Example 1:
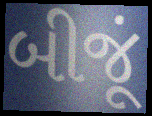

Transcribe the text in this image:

બીજૂં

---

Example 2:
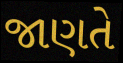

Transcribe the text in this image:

જાણતે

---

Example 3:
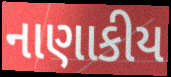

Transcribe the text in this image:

નાણાકીય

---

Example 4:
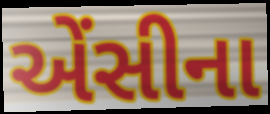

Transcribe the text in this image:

એંસીના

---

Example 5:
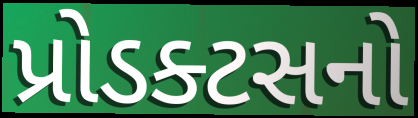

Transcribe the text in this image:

પ્રોડક્ટસનો